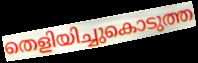
തെളിയിച്ചുകൊടുത്ത